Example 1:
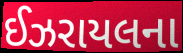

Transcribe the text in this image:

ઈઝરાયલના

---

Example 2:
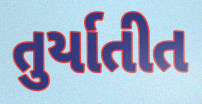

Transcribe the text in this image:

તુર્યાતીત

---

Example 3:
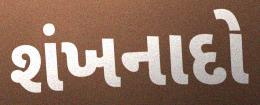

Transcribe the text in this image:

શંખનાદો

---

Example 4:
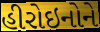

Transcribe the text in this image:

હીરોઇનોને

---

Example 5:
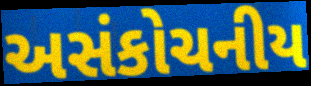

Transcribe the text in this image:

અસંકોચનીય